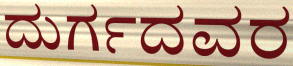
ದುರ್ಗದವರ